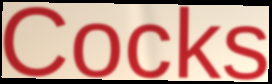
Cocks